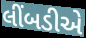
લીંબડીએ